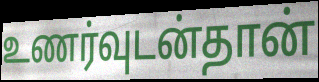
உணர்வுடன்தான்